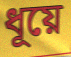
ধূয়ে